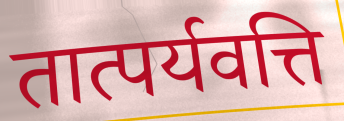
तात्पर्यवत्ति